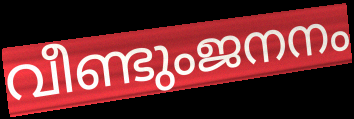
വീണ്ടുംജനനം